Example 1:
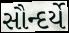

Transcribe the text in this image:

સૌન્દર્યે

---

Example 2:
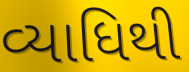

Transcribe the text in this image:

વ્યાધિથી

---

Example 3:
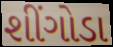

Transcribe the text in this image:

શીંગોડા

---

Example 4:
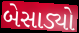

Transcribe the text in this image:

બેસાડ્યો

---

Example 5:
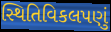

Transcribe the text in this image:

સ્થિતિવિકલપણું